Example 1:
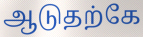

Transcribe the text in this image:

ஆடுதற்கே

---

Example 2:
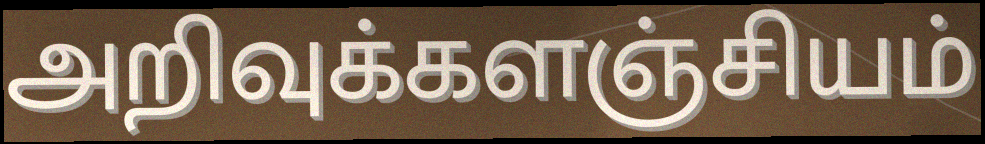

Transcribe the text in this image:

அறிவுக்களஞ்சியம்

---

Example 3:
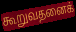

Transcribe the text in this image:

கூறுவதனைக்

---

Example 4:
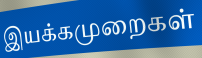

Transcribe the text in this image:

இயக்கமுறைகள்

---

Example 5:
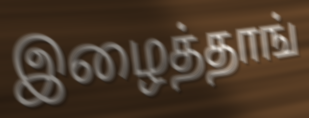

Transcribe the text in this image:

இழைத்தாங்